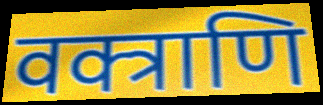
वक्त्राणि